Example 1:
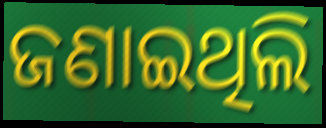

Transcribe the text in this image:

ଜଣାଇଥିଲି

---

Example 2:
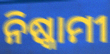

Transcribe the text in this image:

ନିଷ୍କାମୀ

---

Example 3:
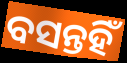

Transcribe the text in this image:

ବସନ୍ତହିଁ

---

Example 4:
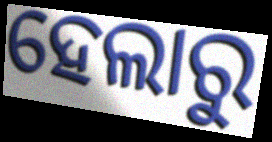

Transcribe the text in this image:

ହେଲାରୁ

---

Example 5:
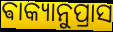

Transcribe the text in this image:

ଵାକ୍ୟାନୁପ୍ରାସ